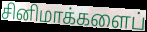
சினிமாக்களைப்